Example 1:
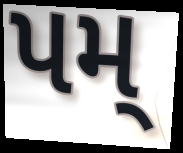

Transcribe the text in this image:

પમ્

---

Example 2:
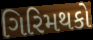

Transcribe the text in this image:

ગિરિમથકો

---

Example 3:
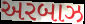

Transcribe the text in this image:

અરબાઝ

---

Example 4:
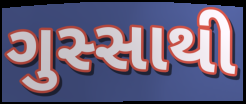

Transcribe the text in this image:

ગુસ્સાથી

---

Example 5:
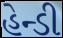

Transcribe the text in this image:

હેન્ડી